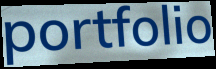
portfolio